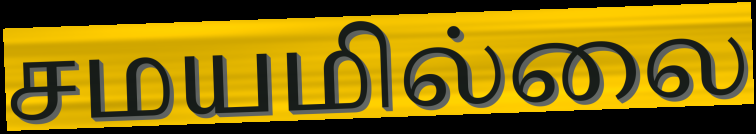
சமயமில்லை